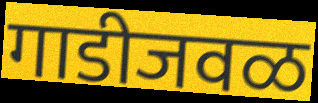
गाडीजवळ